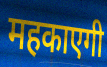
महकाएगी